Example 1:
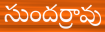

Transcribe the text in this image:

సుందర్రావు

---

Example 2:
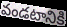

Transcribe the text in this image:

వండటానికి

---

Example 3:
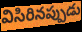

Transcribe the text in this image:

విసిరినప్పుడు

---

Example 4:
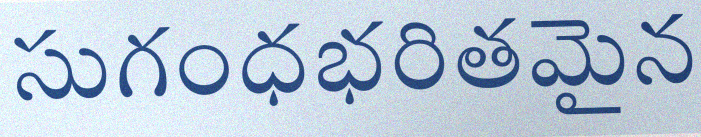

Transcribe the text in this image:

సుగంధభరితమైన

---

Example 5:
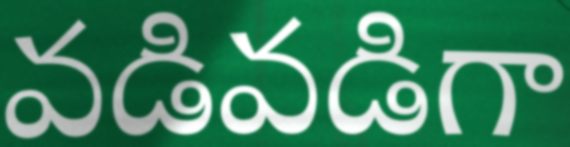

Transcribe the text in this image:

వడివడిగా